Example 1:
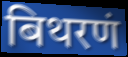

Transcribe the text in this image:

बिथरणं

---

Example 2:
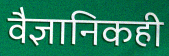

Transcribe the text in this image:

वैज्ञानिकही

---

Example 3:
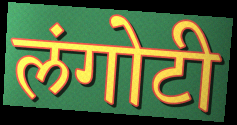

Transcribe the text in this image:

लंगोटी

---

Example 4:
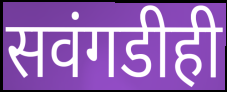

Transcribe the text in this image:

सवंगडीही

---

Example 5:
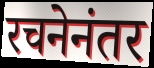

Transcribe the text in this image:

रचनेनंतर